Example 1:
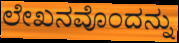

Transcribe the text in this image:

ಲೇಖನವೊಂದನ್ನು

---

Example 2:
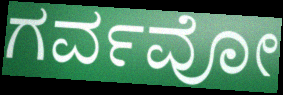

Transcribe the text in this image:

ಗರ್ವವೋ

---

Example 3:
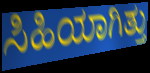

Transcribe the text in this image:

ಸಿಹಿಯಾಗಿತ್ತು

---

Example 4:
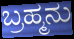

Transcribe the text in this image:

ಬ್ರಹ್ಮನು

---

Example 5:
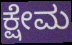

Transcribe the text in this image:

ಕ್ಷೇಮ